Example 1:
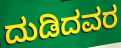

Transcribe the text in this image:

ದುಡಿದವರ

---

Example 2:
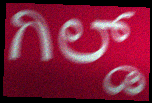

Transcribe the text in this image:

ಗಿಲ್ಡ್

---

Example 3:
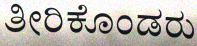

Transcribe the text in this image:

ತೀರಿಕೊಂಡರು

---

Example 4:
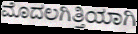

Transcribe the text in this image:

ಮೊದಲಗಿತ್ತಿಯಾಗಿ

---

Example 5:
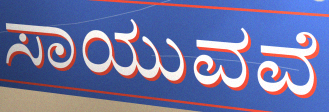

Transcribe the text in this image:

ಸಾಯುವವೆ